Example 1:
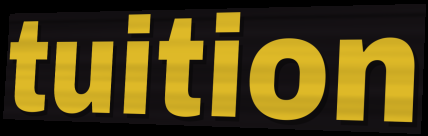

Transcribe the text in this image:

tuition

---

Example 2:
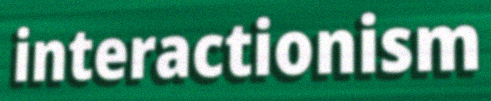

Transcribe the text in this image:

interactionism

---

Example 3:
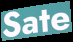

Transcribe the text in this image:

Sate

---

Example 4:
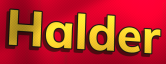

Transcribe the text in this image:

Halder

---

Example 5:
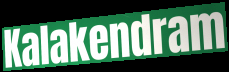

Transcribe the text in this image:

Kalakendram